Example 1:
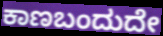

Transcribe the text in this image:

ಕಾಣಬಂದುದೇ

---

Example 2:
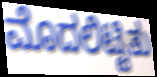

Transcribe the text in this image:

ಮೊದಲಿಟ್ಟಿತು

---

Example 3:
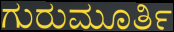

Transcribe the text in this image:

ಗುರುಮೂರ್ತಿ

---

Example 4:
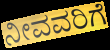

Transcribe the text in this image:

ನೀವವರಿಗೆ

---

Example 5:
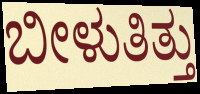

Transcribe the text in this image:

ಬೀಳುತಿತ್ತು